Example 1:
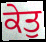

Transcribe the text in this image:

ਕੇਤੁ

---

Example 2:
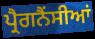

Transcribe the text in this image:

ਪ੍ਰੈਗਨੈਂਸੀਆਂ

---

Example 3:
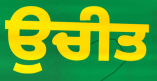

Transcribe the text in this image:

ਉਚੀਤ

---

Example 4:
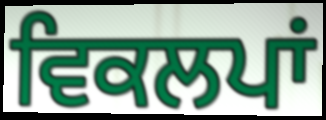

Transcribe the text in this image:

ਵਿਕਲਪਾਂ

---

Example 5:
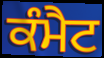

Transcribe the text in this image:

ਕੰਮੈਟ